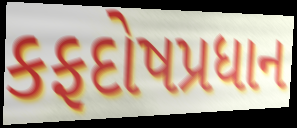
કફદોષપ્રધાન